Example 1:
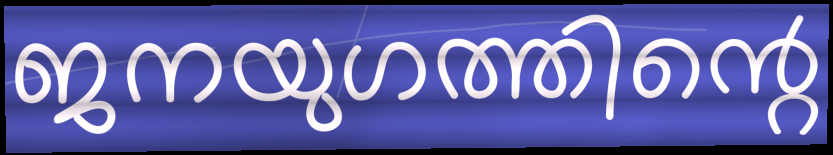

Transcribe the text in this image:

ജനയുഗത്തിന്റെ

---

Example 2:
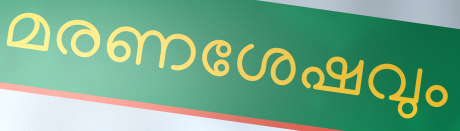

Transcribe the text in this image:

മരണശേഷവും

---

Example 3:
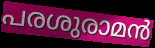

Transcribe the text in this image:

പരശുരാമൻ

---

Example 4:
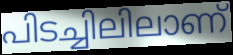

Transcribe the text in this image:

പിടച്ചിലിലാണ്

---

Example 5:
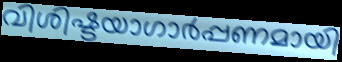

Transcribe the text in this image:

വിശിഷ്ടയാഗാർപ്പണമായി